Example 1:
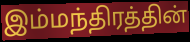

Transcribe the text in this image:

இம்மந்திரத்தின்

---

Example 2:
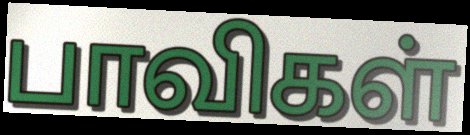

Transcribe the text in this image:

பாவிகள்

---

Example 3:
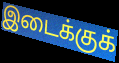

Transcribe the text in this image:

இடைக்குக்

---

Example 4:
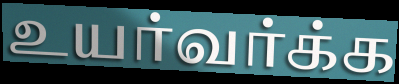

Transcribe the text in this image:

உயர்வர்க்க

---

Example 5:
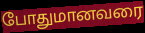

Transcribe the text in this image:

போதுமானவரை